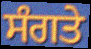
ਸੰਗਤੇ